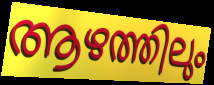
ആഴത്തിലും